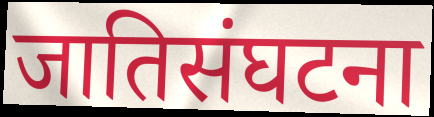
जातिसंघटना